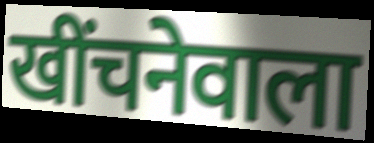
खींचनेवाला